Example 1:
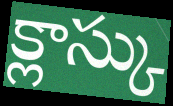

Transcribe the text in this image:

క్లాస్కు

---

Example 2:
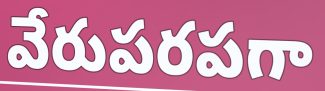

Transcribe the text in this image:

వేరుపరపగా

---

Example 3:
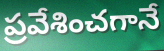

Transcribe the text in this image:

ప్రవేశించగానే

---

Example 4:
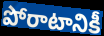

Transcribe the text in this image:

పోరాటానికీ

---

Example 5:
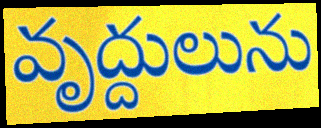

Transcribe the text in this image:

వృద్దులును